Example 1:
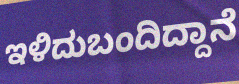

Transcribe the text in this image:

ಇಳಿದುಬಂದಿದ್ದಾನೆ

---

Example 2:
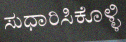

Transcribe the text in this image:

ಸುಧಾರಿಸಿಕೊಳ್ಳಿ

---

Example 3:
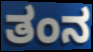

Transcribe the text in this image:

ತಂನ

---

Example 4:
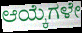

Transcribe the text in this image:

ಆಯ್ಕೆಗಳೇ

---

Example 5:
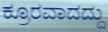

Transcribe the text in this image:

ಕ್ರೂರವಾದದ್ದು